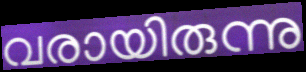
വരായിരുന്നു